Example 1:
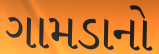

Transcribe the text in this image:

ગામડાનો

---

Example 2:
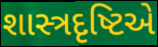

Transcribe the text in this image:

શાસ્ત્રદૃષ્ટિએ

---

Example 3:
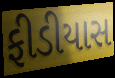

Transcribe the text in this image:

ફીડીયાસ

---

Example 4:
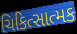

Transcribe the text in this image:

ચિકિત્સાત્મક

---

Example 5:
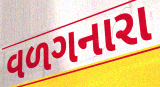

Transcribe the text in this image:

વળગનારા